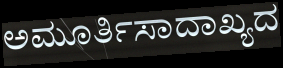
ಅಮೂರ್ತಿಸಾದಾಖ್ಯದ